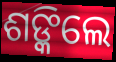
ଶଙ୍କିଲେ